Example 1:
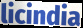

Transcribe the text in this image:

licindia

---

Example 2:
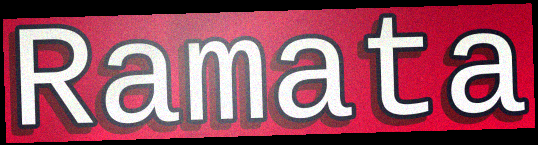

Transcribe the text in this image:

Ramata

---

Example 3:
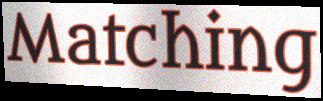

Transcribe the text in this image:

Matching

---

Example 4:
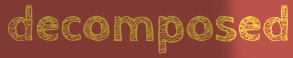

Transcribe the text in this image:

decomposed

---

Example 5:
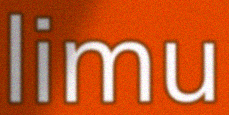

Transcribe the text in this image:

limu